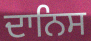
ਦਾਨਿਸ